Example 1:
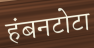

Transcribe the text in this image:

हंबनटोटा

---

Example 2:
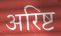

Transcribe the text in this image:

अरिष्ट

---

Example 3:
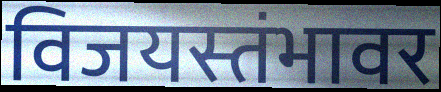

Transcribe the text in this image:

विजयस्तंभावर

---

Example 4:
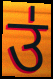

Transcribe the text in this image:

उ॑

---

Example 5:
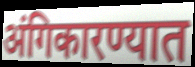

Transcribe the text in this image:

अंगिकारण्यात